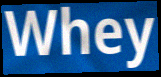
Whey